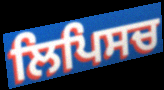
ਲਿਪਿਸਚ